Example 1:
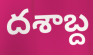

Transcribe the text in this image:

దశాబ్ద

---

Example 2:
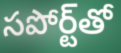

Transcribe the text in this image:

సపోర్ట్‌తో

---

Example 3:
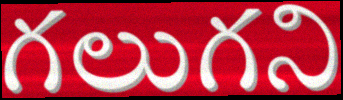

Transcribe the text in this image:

గలుగని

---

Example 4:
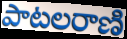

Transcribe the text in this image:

పాటలరాణి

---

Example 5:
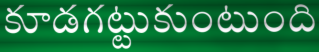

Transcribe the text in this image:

కూడగట్టుకుంటుంది